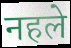
नहले